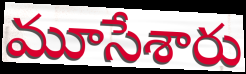
మూసేశారు